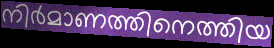
നിർമാണത്തിനെത്തിയ